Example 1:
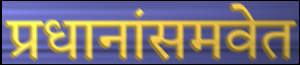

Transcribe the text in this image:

प्रधानांसमवेत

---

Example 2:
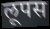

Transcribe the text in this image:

लूपस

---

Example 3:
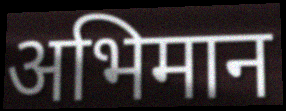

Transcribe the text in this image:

अभिमान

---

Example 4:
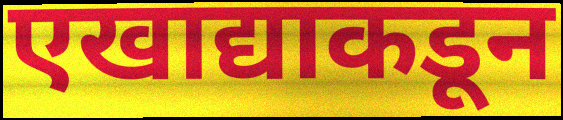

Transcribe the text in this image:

एखाद्याकडून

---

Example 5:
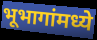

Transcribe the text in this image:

भूभागांमध्ये